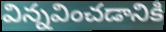
విన్నవించడానికి